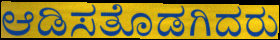
ಆಡಿಸತೊಡಗಿದರು